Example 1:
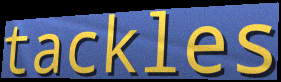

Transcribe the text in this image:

tackles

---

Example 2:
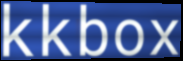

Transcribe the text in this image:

kkbox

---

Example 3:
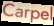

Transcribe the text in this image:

Carpel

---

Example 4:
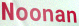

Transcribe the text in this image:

Noonan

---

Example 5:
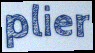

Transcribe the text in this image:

plier